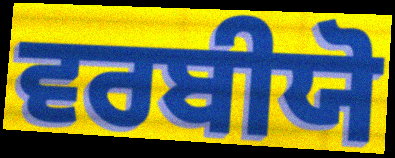
ਵਰਬੀਯੋ